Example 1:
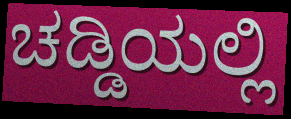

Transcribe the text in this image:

ಚಡ್ಡಿಯಲ್ಲಿ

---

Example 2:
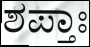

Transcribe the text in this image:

ಶಪ್ತಾಃ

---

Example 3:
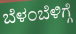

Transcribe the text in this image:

ಬೆಳಂಬೆಳಿಗ್ಗೆ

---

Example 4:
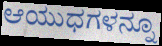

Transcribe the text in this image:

ಆಯುಧಗಳನ್ನೂ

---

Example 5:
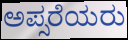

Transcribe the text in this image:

ಅಪ್ಸರೆಯರು